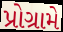
પ્રોગ્રામે